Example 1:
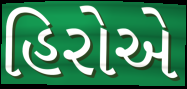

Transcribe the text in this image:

હિરોએ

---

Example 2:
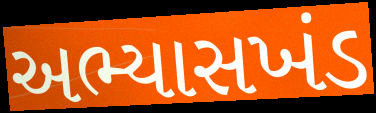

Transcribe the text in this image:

અભ્યાસખંડ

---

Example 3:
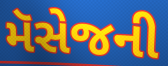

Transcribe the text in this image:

મૅસેજની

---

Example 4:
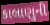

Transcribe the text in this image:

કાલાણુની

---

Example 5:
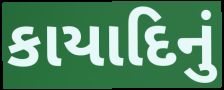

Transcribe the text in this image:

કાયાદિનું